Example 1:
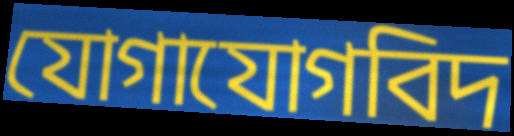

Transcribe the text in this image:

যোগাযোগবিদ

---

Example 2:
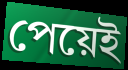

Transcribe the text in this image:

পেয়েই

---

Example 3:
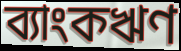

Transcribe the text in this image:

ব্যাংকঋণ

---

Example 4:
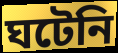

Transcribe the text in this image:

ঘটেনি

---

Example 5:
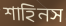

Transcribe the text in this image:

শাহিনস